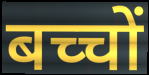
बच्चों